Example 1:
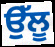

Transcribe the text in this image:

ਉੱਲੂ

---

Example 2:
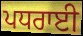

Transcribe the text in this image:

ਪਧਰਾਈ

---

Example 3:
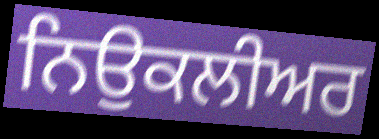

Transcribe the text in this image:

ਨਿਉਕਲੀਅਰ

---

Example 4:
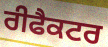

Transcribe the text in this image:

ਰੀਫੈਕਟਰ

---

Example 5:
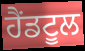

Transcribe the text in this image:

ਹੈਂਡਟੂਲ